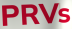
PRVs